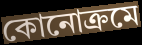
কোনোক্রমে